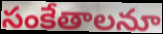
సంకేతాలనూ